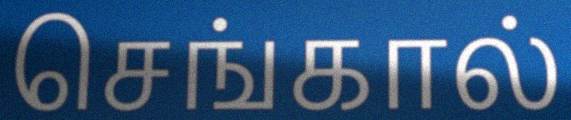
செங்கால்